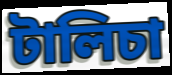
টালিচা